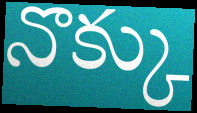
నొక్కు